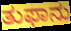
ತುಫಾನು